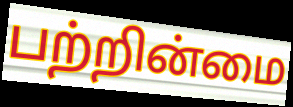
பற்றின்மை